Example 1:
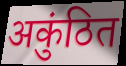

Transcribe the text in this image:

अकुंठित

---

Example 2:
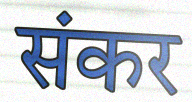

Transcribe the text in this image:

संकर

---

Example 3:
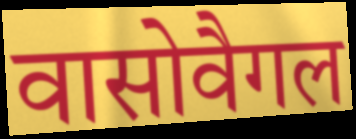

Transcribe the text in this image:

वासोवैगल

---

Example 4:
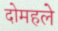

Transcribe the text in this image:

दोमहले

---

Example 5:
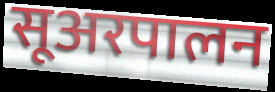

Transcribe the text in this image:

सूअरपालन